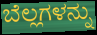
ಬೆಲ್ಲಗಳನ್ನು